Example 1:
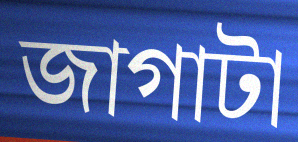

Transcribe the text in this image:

জাগাটা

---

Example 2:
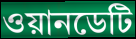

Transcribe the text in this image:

ওয়ানডেটি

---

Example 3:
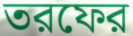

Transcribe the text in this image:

তরফের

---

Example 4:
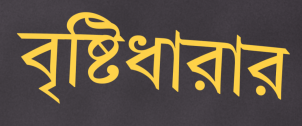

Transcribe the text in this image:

বৃষ্টিধারার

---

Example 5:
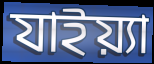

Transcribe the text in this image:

যাইয়্যা